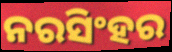
ନରସିଂହର